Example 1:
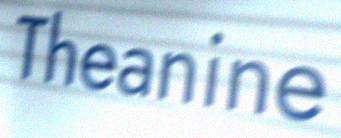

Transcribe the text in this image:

Theanine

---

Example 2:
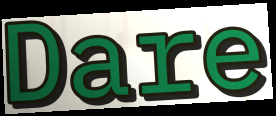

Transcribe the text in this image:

Dare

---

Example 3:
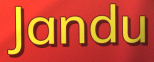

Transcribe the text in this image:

Jandu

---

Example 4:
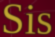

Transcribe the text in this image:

Sis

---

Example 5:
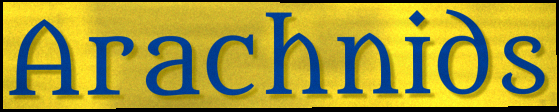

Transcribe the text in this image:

Arachnids